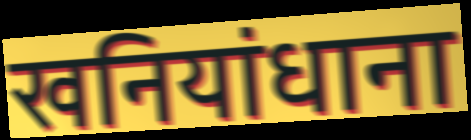
खनियांधाना